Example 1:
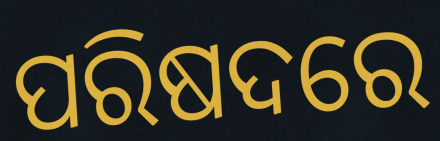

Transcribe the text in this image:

ପରିଷଦରେ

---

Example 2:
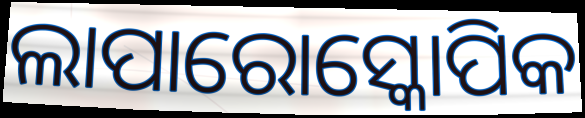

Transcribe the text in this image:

ଲାପାରୋସ୍କୋପିକ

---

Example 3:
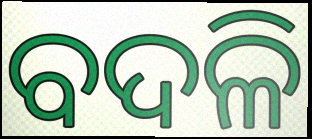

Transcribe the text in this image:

ବଦଳି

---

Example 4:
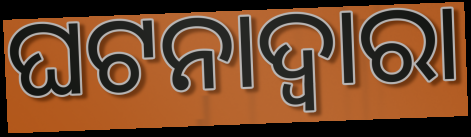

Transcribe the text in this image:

ଘଟନାଦ୍ୱାରା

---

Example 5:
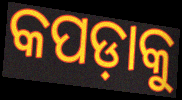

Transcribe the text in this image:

କପଡ଼ାକୁ